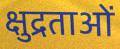
क्षुद्रताओं